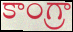
కాంగ్రా